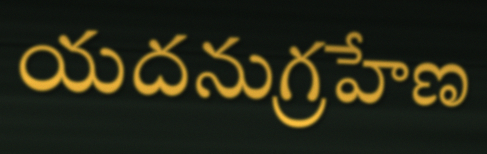
యదనుగ్రహేణ